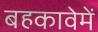
बहकावेमें